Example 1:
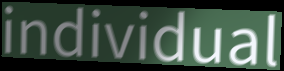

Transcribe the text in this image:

individual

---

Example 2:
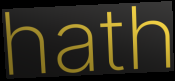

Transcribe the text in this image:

hath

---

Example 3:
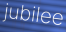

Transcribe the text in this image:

jubilee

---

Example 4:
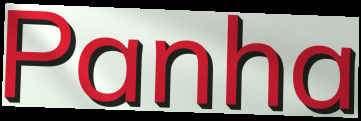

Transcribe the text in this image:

Panha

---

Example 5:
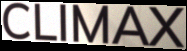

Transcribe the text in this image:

CLIMAX